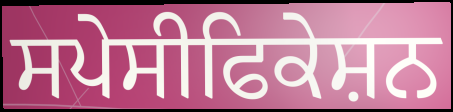
ਸਪੇਸੀਫਿਕੇਸ਼ਨ